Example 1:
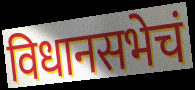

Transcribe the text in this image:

विधानसभेचं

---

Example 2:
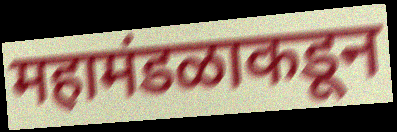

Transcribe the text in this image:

महामंडळाकडून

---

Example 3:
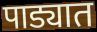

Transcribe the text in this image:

पाड्यात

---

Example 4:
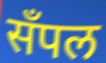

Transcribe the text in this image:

सँपल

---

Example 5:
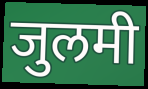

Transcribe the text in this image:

जुलमी